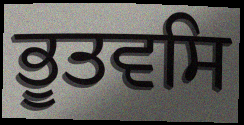
ਭੂਤਵਸਿ